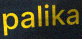
palika